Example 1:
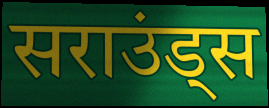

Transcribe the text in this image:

सराउंड्स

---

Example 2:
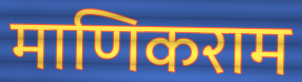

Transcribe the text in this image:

माणिकराम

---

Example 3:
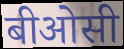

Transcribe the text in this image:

बीओसी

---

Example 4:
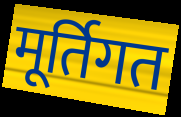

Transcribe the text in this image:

मूर्तिगत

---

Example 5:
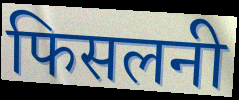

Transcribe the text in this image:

फिसलनी